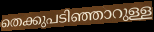
തെക്കുപടിഞ്ഞാറുള്ള